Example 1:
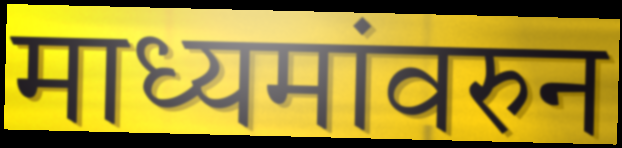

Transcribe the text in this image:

माध्यमांवरुन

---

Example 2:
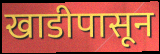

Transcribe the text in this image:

खाडीपासून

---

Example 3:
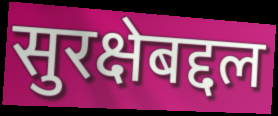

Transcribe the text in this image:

सुरक्षेबद्दल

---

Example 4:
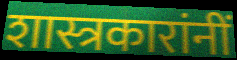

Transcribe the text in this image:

शास्त्रकारांनीं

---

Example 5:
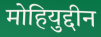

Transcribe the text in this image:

मोहियुद्दीन